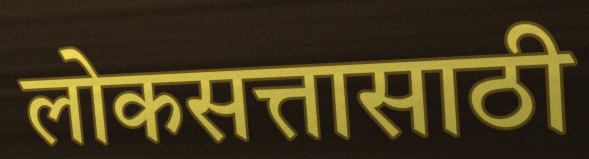
लोकसत्तासाठी